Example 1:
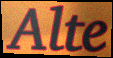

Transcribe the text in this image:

Alte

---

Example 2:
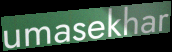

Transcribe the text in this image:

umasekhar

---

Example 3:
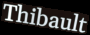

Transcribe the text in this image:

Thibault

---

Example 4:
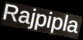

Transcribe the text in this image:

Rajpipla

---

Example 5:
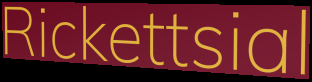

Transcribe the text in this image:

Rickettsial